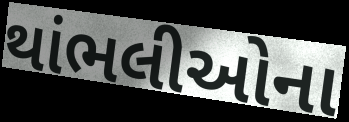
થાંભલીઓના